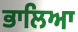
ਭਾਲਿਆ